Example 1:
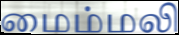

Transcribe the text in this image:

மைம்மலி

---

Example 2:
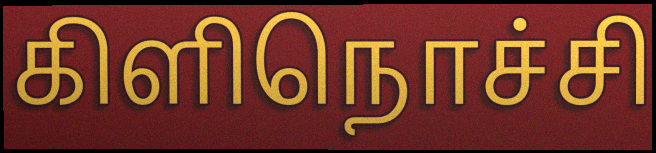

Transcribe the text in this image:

கிளிநொச்சி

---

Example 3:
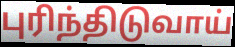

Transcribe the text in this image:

புரிந்திடுவாய்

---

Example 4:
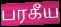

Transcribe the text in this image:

பரகீய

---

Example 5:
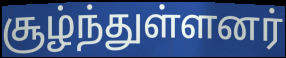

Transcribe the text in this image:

சூழ்ந்துள்ளனர்